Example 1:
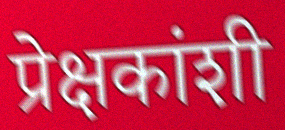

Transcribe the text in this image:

प्रेक्षकांशी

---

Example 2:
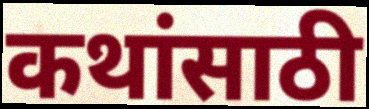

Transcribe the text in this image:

कथांसाठी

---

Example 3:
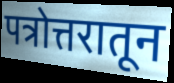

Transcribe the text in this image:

पत्रोत्तरातून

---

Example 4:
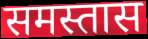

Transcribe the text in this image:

समस्तास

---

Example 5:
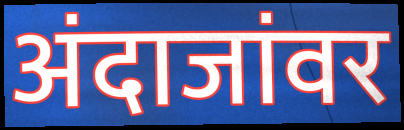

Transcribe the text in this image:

अंदाजांवर